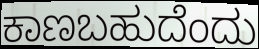
ಕಾಣಬಹುದೆಂದು